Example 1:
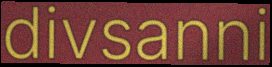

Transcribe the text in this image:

divsanni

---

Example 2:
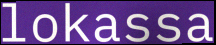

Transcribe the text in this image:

lokassa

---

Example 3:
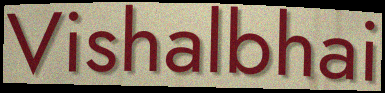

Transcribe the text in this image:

Vishalbhai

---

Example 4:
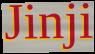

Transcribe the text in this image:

Jinji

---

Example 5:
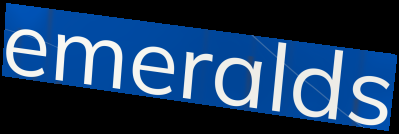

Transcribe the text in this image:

emeralds